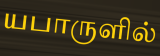
யபாருளில்